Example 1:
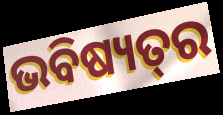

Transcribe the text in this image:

ଭବିଷ୍ୟତ୍‌ର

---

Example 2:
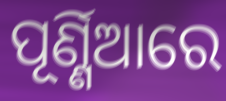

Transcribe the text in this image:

ପୂର୍ଣ୍ଣିଆରେ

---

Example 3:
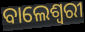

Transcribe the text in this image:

ବାଲେଶ୍ଵରୀ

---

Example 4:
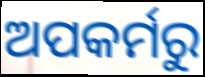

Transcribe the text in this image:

ଅପକର୍ମରୁ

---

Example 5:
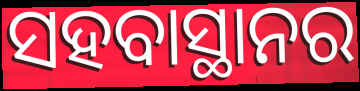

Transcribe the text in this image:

ସହବାସ୍ଥାନର